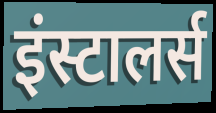
इंस्टालर्स